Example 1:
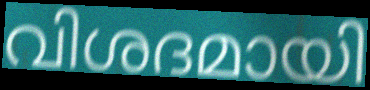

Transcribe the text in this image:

വിശദമായി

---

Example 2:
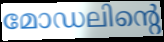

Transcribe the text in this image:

മോഡലിന്റെ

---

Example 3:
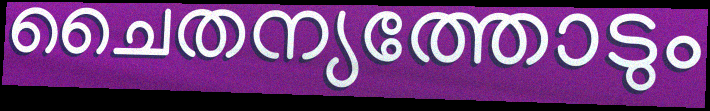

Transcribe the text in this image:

ചൈതന്യത്തോടും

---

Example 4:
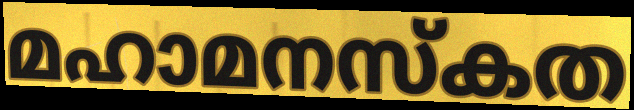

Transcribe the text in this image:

മഹാമനസ്കത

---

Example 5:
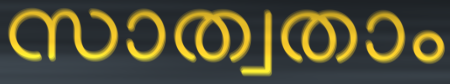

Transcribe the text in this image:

സാത്വതാം